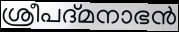
ശ്രീപദ്മനാഭൻ